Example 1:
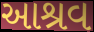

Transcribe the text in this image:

આશ્રવ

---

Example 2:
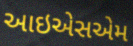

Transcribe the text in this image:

આઇએસએમ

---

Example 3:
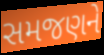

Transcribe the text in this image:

સમજણને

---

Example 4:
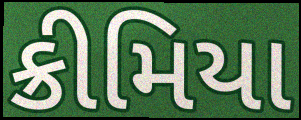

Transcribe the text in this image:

ક્રીમિયા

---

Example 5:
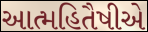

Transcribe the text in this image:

આત્મહિતૈષીએ